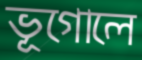
ভূগোলে